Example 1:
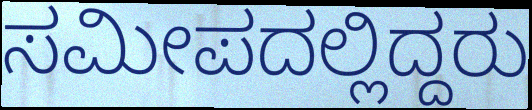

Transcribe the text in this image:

ಸಮೀಪದಲ್ಲಿದ್ದರು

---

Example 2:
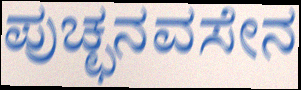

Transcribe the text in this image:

ಪುಚ್ಛನವಸೇನ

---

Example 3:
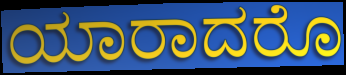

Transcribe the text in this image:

ಯಾರಾದರೊ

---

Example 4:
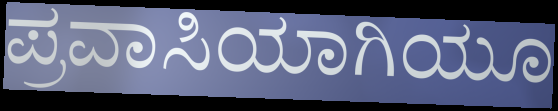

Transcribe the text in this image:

ಪ್ರವಾಸಿಯಾಗಿಯೂ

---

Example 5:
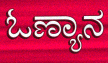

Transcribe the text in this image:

ಓಣ್ಯಾನ